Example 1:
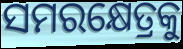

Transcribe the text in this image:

ସମରକ୍ଷେତ୍ରକୁ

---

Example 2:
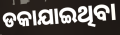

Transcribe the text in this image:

ଡକାଯାଇଥିବା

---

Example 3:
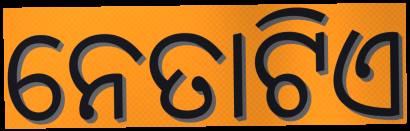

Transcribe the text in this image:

ନେତାଟିଏ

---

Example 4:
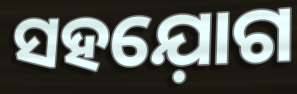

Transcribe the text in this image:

ସହଯ଼ୋଗ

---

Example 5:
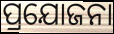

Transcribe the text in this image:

ପ୍ରଯୋଜନା